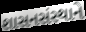
શાસનસંસ્થાને